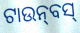
ଟାଉନ୍‍ବସ୍